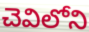
చెవిలోని